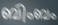
ബിംബം